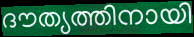
ദൗത്യത്തിനായി